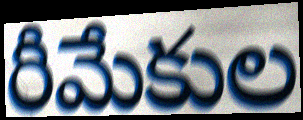
రీమేకుల